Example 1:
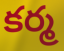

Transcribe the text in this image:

కర్మ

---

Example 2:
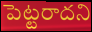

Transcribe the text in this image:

పెట్టరాదని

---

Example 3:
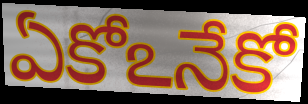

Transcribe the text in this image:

ఏకోఽనేకో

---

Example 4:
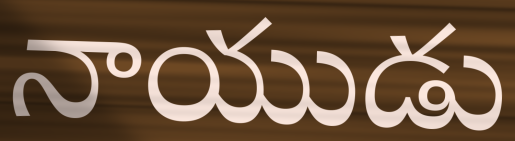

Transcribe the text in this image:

నాయుడు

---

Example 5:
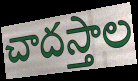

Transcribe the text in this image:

చాదస్తాల